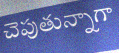
చెపుతున్నాగా